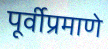
पूर्वीप्रमाणे